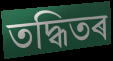
তদ্ধিতৰ